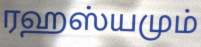
ரஹஸ்யமும்